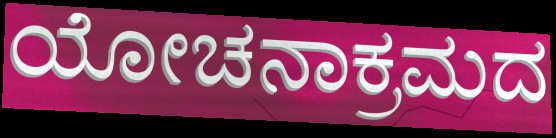
ಯೋಚನಾಕ್ರಮದ